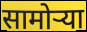
सामोऱ्या